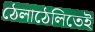
ঠেলাঠেলিতেই